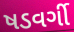
ષડવર્ગી